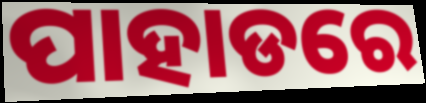
ପାହାଡରେ